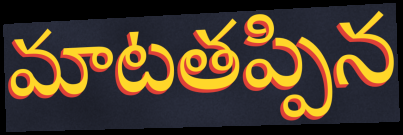
మాటతప్పిన